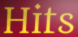
Hits